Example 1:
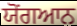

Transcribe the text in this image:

ਯੋਂਗਆਨ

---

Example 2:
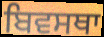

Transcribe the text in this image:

ਬਿਵਸਥਾ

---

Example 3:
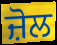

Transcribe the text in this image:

ਜ਼ੋਲ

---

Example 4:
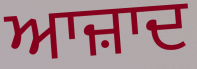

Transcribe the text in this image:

ਆਜ਼ਾਦ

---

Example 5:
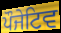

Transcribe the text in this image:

ਪੌਜੇਟਿਵ